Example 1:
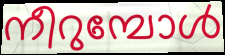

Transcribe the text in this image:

നീറുമ്പോൾ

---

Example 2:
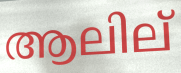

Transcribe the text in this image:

ആലില്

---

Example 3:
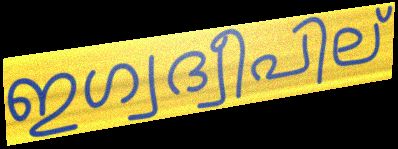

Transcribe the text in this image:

ഇഗ്വദ്വീപില്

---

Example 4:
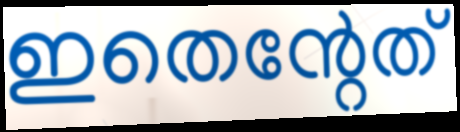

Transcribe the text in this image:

ഇതെന്റേത്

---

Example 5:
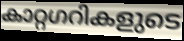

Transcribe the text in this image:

കാറ്റഗറികളുടെ